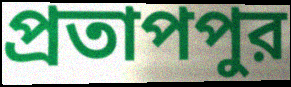
প্রতাপপুর